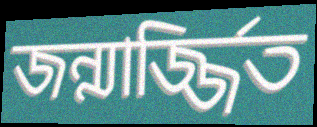
জন্মার্জ্জিত